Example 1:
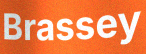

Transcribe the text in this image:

Brassey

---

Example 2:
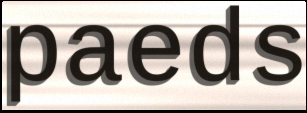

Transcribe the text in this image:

paeds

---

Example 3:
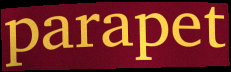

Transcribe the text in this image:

parapet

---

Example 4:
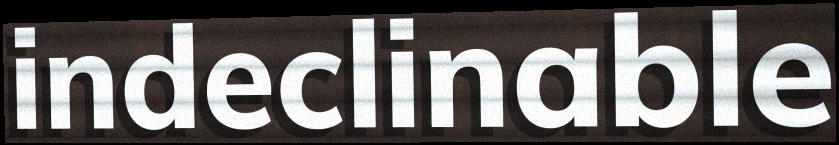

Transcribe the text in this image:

indeclinable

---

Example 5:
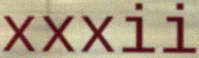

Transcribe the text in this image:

xxxii